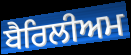
ਬੈਰਿਲੀਅਮ